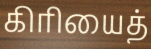
கிரியைத்